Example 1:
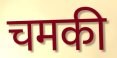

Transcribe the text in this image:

चमकी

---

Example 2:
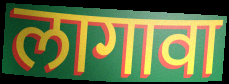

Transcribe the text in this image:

लागावा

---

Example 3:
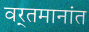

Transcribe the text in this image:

वर्तमानांत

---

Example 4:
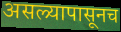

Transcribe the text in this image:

असल्यापासूनच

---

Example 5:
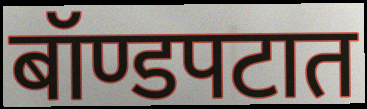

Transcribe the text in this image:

बॉण्डपटात